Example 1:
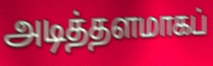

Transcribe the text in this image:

அடித்தளமாகப்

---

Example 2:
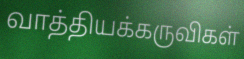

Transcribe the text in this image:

வாத்தியக்கருவிகள்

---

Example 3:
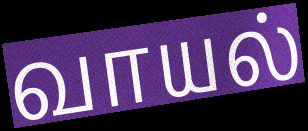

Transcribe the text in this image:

வாயல்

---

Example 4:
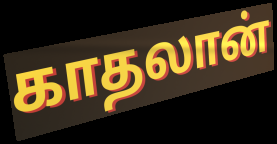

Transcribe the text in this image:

காதலான்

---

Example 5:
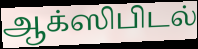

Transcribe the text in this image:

ஆக்ஸிபிடல்